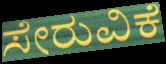
ಸೇರುವಿಕೆ